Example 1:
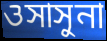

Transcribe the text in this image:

ওসাসুনা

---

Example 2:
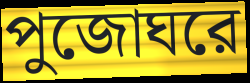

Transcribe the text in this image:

পুজোঘরে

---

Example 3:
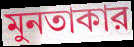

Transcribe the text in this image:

মুনতাকার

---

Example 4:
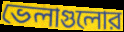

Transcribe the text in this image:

ভেলাগুলোর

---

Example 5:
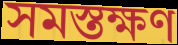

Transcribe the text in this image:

সমস্তক্ষণ